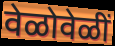
वेळोवेळीं